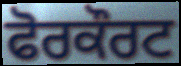
ਫੋਰਕੌਰਟ